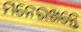
ମନେରଖନ୍ତେ